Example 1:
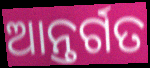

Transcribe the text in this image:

ଆନ୍ତର୍ଗତ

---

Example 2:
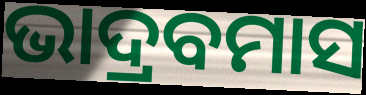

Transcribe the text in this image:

ଭାଦ୍ରବମାସ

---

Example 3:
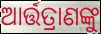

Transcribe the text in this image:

ଆର୍ତ୍ତତ୍ରାଣଙ୍କୁ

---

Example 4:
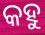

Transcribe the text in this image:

କହୁ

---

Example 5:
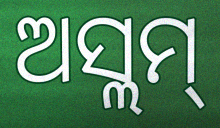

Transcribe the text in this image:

ଅସ୍ଲମ୍